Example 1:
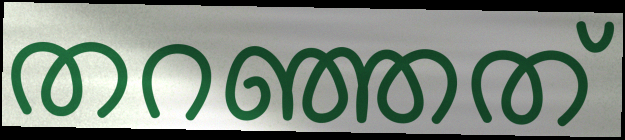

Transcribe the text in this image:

തറഞ്ഞത്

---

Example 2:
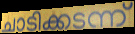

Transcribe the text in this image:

ചാടിക്കടന്ന്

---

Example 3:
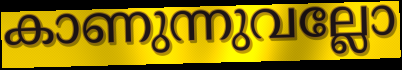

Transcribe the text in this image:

കാണുന്നുവല്ലോ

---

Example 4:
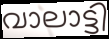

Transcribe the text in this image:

വാലാട്ടി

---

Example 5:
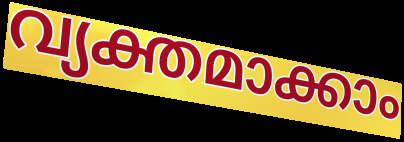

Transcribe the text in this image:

വ്യക്തമാക്കാം